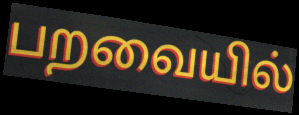
பறவையில்